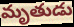
మృతుడు